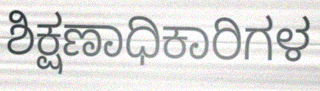
ಶಿಕ್ಷಣಾಧಿಕಾರಿಗಳ